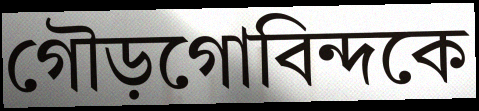
গৌড়গোবিন্দকে